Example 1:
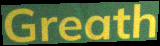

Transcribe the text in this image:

Greath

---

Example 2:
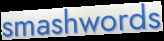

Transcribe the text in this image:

smashwords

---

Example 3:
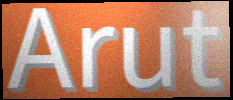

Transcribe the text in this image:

Arut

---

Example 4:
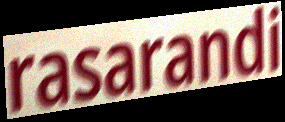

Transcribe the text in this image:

rasarandi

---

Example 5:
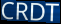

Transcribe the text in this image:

CRDT